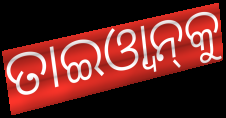
ତାଇଓ୍ବାନ୍‌କୁ